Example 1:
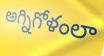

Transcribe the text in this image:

అగ్నిగోళంలా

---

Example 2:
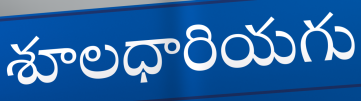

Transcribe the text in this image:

శూలధారియగు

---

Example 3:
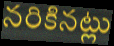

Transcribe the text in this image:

నరికినట్లు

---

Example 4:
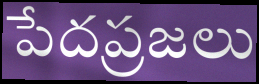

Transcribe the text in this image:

పేదప్రజలు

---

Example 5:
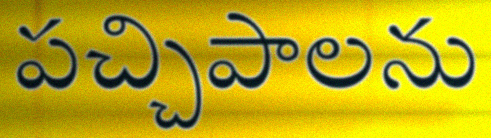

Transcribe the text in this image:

పచ్చిపాలను